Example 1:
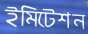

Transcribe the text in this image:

ইমিটেশন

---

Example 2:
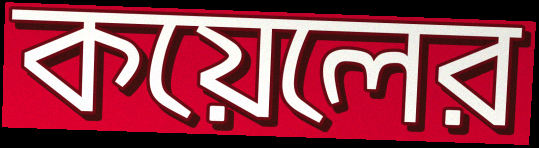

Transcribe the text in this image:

কয়েলের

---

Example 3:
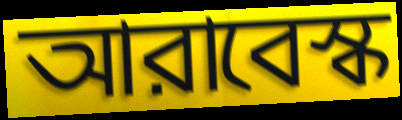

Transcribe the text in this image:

আরাবেস্ক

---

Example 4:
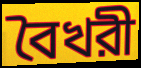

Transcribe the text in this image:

বৈখরী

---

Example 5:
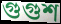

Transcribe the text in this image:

গুগুশ